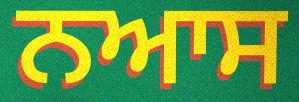
ਨਆਸ